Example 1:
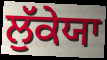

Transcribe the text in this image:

ਲੁੱਕੇਯਾ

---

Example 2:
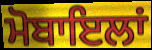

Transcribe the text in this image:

ਮੋਬਾਇਲਾਂ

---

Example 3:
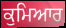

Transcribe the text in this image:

ਕੁਮਿਆਰ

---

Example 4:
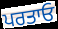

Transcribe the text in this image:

ਪਰਤਾਓ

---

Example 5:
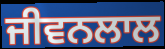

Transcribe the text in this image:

ਜੀਵਨਲਾਲ